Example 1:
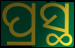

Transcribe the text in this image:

ପ୍ରସ୍ଥ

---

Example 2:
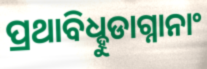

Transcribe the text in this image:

ପ୍ରଥାବିଧ୍ହୁଡାଗ୍ନାନାଂ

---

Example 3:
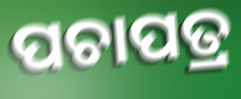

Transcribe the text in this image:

ପଚାପତ୍ର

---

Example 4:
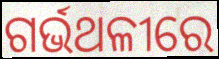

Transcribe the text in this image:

ଗର୍ଭଥଳୀରେ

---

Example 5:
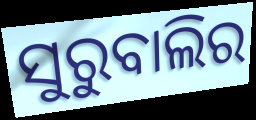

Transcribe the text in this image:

ସୁରୁବାଲିର